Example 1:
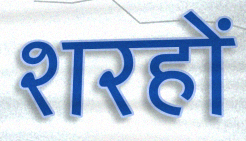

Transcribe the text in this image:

शरहों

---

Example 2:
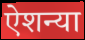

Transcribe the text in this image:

ऐशन्या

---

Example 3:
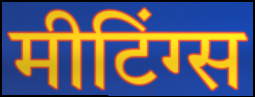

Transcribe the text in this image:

मीटिंग्स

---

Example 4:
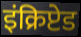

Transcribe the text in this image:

इंक्रिप्टेड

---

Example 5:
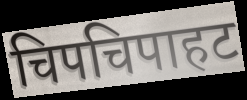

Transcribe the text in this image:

चिपचिपाहट